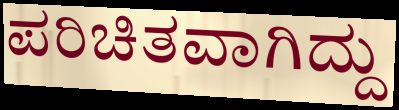
ಪರಿಚಿತವಾಗಿದ್ದು